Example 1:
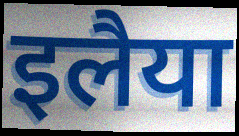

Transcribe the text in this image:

इलैया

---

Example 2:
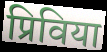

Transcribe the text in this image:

प्रिविया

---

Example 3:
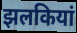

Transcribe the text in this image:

झलकियां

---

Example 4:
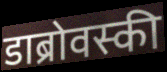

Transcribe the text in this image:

डाब्रोवस्की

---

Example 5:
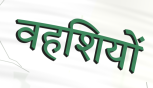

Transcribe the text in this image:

वहशियों